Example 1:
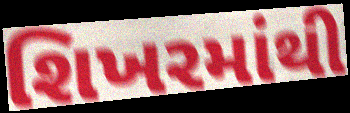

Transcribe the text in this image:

શિખરમાંથી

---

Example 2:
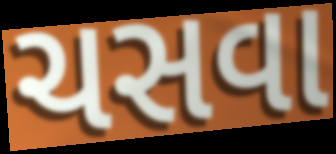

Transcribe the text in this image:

ચસવા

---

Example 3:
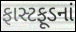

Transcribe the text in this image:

ફાસ્ટફૂડનાં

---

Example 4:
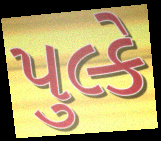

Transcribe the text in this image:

પુલ્કે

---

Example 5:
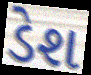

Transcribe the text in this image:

ડેશ